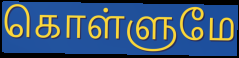
கொள்ளுமே